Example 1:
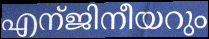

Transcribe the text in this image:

എന്ജിനീയറും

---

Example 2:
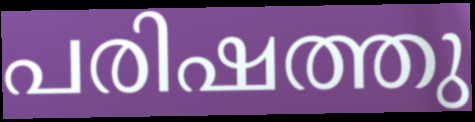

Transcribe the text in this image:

പരിഷത്തു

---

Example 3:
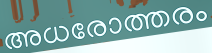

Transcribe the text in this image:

അധരോത്തരം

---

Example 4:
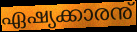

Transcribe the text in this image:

ഏഷ്യക്കാരനു്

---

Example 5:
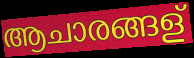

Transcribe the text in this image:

ആചാരങ്ങള്